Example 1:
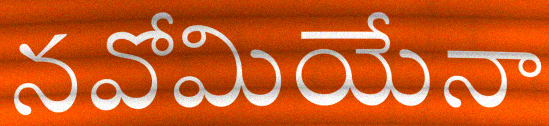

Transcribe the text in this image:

నవోమియేనా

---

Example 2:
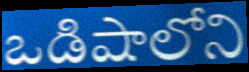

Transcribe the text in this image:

ఒడిషాలోని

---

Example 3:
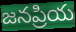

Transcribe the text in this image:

జనప్రియ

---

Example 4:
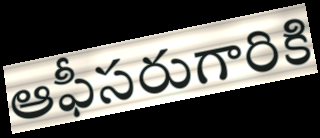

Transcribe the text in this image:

ఆఫీసరుగారికి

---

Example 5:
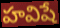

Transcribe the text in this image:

హవిషే